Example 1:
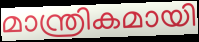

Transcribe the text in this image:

മാന്ത്രികമായി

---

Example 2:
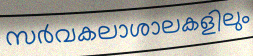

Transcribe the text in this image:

സർവകലാശാലകളിലും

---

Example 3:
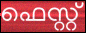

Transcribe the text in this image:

ഫെസ്റ്റ്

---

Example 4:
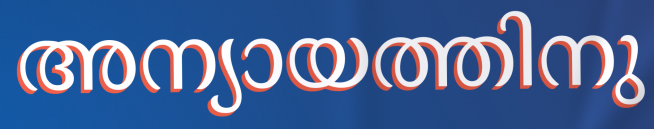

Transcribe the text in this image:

അന്യായത്തിനു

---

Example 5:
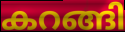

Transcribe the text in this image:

കറങ്ങി